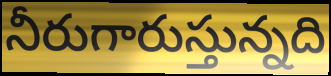
నీరుగారుస్తున్నది